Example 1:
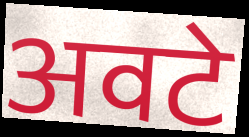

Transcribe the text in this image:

अवटे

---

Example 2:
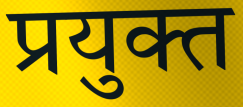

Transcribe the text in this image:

प्रयुक्त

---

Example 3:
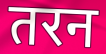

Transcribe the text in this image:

तरन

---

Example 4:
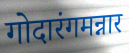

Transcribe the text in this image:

गोदारंगमन्नार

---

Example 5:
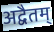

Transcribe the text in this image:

अद्वैतम्